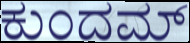
ಕುಂದಮ್